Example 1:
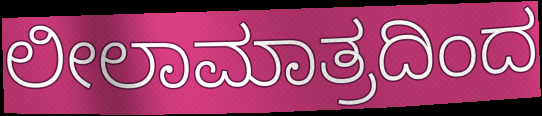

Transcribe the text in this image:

ಲೀಲಾಮಾತ್ರದಿಂದ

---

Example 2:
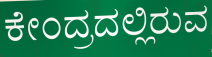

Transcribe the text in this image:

ಕೇಂದ್ರದಲ್ಲಿರುವ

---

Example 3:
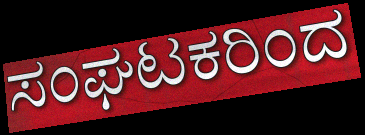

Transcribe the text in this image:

ಸಂಘಟಕರಿಂದ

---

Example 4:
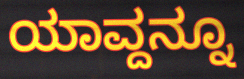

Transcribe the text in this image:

ಯಾವ್ದನ್ನೂ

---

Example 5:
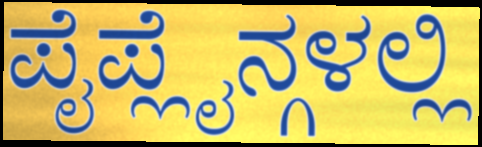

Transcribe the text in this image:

ಪೈಪ್ಲೈನ್ಗಳಲ್ಲಿ